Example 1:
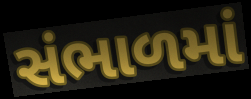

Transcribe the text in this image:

સંભાળમાં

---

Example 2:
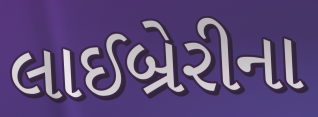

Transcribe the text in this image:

લાઈબ્રેરીના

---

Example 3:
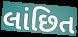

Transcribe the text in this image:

લાંછિત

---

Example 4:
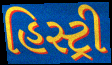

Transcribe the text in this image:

હિસ્ટ્રી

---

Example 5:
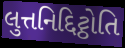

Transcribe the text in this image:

લુત્તનિદ્દિટ્ઠોતિ